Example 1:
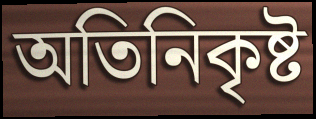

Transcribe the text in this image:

অতিনিকৃষ্ট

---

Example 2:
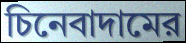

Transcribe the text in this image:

চিনেবাদামের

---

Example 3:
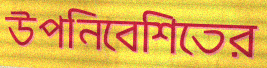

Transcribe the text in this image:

উপনিবেশিতের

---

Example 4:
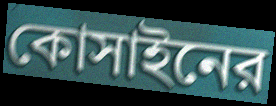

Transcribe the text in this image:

কোসাইনের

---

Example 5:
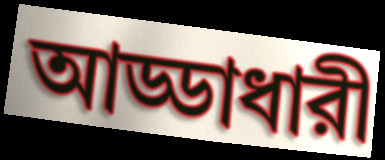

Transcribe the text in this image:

আড্ডাধারী